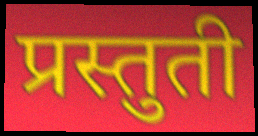
प्रस्तुती